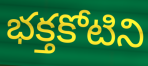
భక్తకోటిని